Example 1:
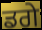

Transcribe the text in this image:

ਡਗੇ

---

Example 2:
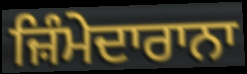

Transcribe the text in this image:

ਜ਼ਿੰਮੇਦਾਰਾਨਾ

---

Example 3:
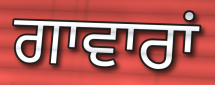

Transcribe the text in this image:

ਗਾਵਾਰਾਂ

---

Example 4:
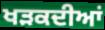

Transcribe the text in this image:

ਖੜਕਦੀਆਂ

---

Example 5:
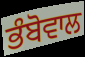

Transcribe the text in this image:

ਭੰਬੋਵਾਲ